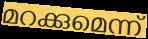
മറക്കുമെന്ന്